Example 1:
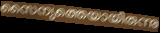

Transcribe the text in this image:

സൈന്യത്തെയായിരുന്നു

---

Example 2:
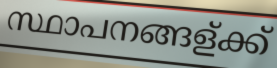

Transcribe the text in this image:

സ്ഥാപനങ്ങള്ക്ക്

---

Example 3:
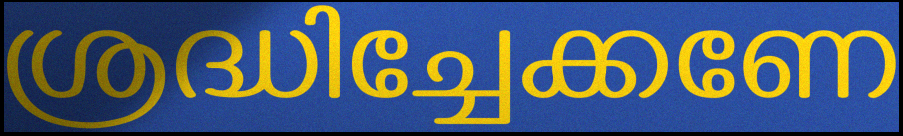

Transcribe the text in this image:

ശ്രദ്ധിച്ചേക്കണേ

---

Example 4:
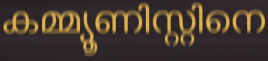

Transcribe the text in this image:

കമ്മ്യൂണിസ്റ്റിനെ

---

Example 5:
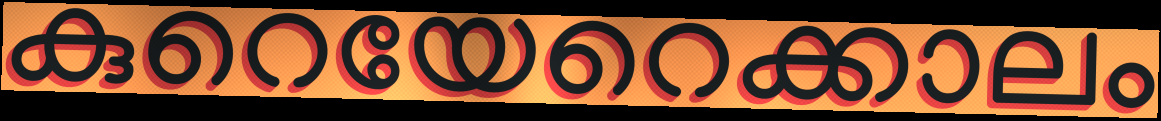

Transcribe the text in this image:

കുറെയേറെക്കാലം